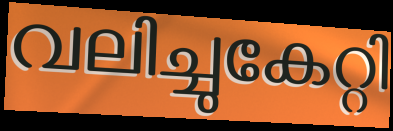
വലിച്ചുകേറ്റി